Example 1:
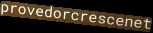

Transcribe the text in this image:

provedorcrescenet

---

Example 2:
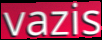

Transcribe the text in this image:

vazis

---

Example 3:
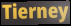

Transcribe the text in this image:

Tierney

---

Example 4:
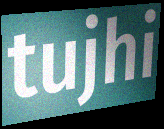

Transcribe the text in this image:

tujhi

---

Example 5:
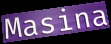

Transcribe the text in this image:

Masina